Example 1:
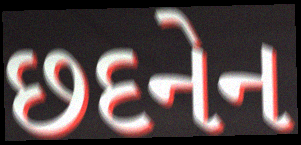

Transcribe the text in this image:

છદનેન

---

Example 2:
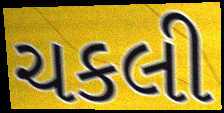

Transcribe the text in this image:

ચકલી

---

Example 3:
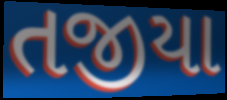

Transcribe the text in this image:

તજીયા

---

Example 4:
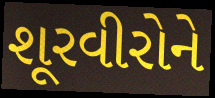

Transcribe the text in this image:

શૂરવીરોને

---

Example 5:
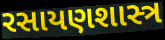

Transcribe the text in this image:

રસાયણશાસ્ત્ર